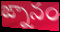
ఙ్నానం